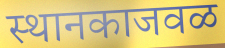
स्थानकाजवळ